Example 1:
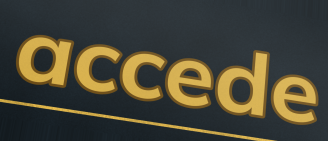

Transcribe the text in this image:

accede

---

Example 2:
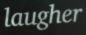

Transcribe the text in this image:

laugher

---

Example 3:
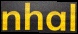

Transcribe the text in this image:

nhal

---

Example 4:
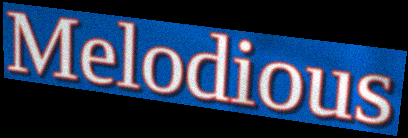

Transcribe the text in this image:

Melodious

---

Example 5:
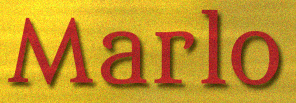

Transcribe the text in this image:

Marlo